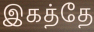
இகத்தே